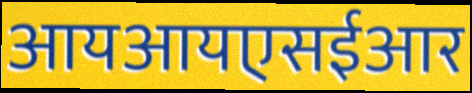
आयआयएसईआर